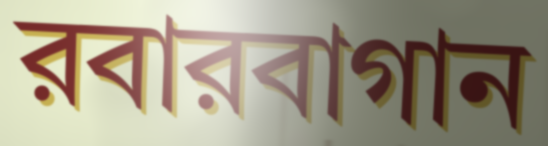
রবারবাগান